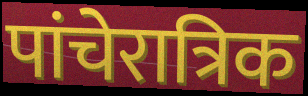
पांचेरात्रिक